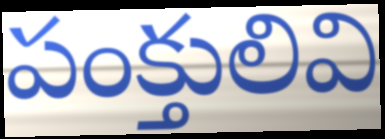
పంక్తులివి